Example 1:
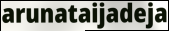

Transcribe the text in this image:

arunataijadeja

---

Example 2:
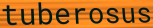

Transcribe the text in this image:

tuberosus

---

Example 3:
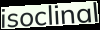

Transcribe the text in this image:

isoclinal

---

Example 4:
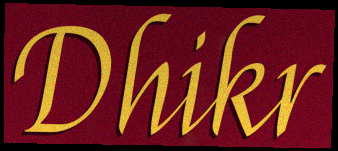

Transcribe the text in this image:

Dhikr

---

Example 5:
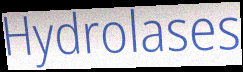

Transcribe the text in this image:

Hydrolases